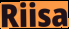
Riisa